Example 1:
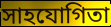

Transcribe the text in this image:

সাহযোগিতা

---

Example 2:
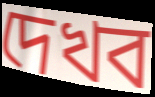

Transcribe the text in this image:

দেখব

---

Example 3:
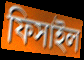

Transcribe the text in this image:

ফিসাইল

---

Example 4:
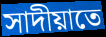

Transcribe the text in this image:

সাদীয়াতে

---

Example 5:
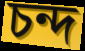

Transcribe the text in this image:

চন্দ